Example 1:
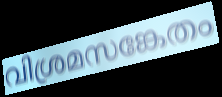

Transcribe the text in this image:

വിശ്രമസങ്കേതം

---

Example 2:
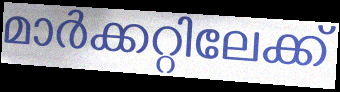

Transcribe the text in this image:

മാർക്കറ്റിലേക്ക്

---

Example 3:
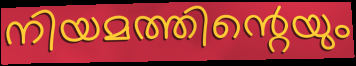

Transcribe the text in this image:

നിയമത്തിന്റെയും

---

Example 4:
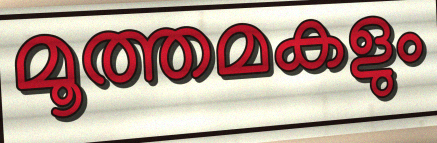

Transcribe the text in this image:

മൂത്തമകളും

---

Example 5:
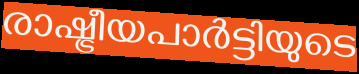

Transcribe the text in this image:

രാഷ്ട്രീയപാർട്ടിയുടെ